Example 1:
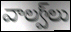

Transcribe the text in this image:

వాల్వ్‌లు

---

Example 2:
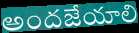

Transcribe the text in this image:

అందజేయాలి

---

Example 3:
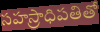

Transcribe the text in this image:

సహస్రాధిపతితో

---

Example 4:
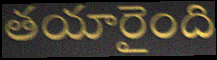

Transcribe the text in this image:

తయారైంది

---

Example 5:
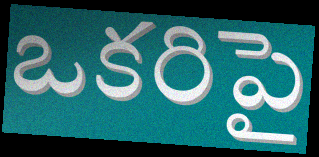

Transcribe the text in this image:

ఒకరిపై